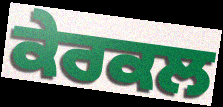
ਕੇਰਕਲ